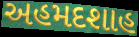
અહમદશાહ